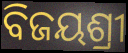
ବିଜୟଶ୍ରୀ